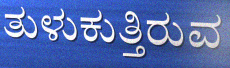
ತುಳುಕುತ್ತಿರುವ